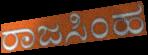
ರಾಜಸಿಂಹ